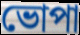
ভোপা